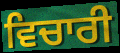
ਵਿਚਾਰੀ